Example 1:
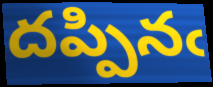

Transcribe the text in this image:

దప్పినఁ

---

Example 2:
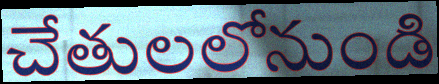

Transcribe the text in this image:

చేతులలోనుండి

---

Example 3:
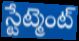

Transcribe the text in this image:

స్టేట్మెంట్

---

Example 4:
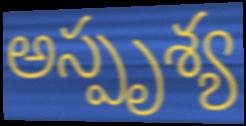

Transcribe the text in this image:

అస్పృశ్య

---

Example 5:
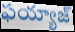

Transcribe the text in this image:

ఫయ్యాజ్